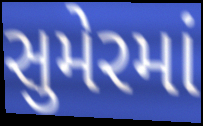
સુમેરમાં